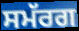
ਸਮੱਰਗ